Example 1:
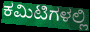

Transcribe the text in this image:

ಕಮಿಟಿಗಳಲ್ಲಿ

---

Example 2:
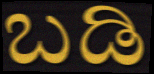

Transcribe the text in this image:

ಬಡಿ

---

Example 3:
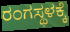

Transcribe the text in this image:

ರಂಗಸ್ಥಳಕ್ಕೆ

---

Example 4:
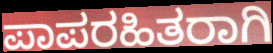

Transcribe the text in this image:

ಪಾಪರಹಿತರಾಗಿ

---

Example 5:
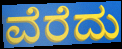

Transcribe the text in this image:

ವೆರೆದು